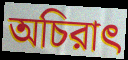
অচিরাৎ